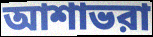
আশাভরা